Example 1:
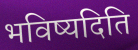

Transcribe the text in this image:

भविष्यदिति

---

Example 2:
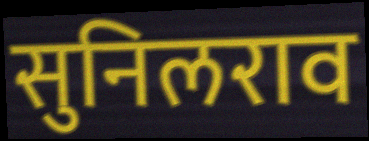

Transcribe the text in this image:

सुनिलराव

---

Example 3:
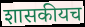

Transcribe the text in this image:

शासकीयच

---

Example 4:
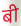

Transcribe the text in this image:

बी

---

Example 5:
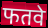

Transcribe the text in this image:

फतवे